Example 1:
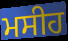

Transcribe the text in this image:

ਮਸੀਹ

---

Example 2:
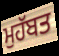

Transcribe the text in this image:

ਮੁਹੱਬਤ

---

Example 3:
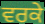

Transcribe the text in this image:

ਵਰਕੇ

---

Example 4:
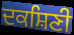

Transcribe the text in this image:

ਦਕਸ਼ਿਣੀ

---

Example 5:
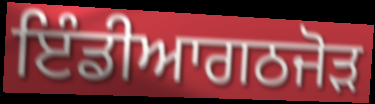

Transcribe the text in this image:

ਇੰਡੀਆਗਠਜੋੜ